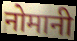
नोमानी